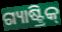
ଗ୍ୟାଷ୍ଟ୍ରିକ୍